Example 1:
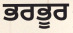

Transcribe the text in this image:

ਭਰਭੂਰ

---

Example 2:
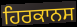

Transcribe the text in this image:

ਹਿਰਕਾਨਸ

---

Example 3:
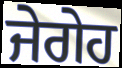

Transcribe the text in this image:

ਜੇਗੇਹ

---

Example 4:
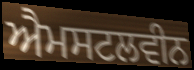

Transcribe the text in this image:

ਐਮਸਟਲਵੀਨ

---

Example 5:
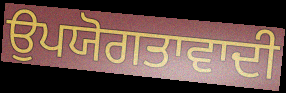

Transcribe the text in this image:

ਉਪਯੋਗਤਾਵਾਦੀ